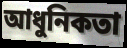
আধুনিকতা